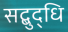
सद्बुद्धि